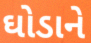
ઘોડાને